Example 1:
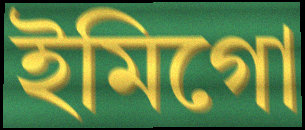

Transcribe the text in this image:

ইমিগো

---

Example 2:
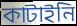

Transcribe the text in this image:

কাটাইনি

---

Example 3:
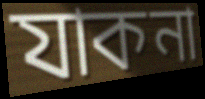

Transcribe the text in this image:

যাকনা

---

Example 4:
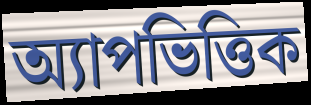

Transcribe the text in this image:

অ্যাপভিত্তিক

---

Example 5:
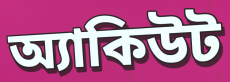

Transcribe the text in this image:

অ্যাকিউট